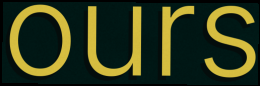
ours